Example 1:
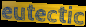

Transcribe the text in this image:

eutectic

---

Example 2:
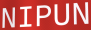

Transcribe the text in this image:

NIPUN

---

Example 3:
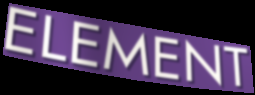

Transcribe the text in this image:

ELEMENT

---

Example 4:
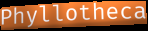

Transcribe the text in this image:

Phyllotheca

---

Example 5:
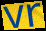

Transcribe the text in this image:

vr